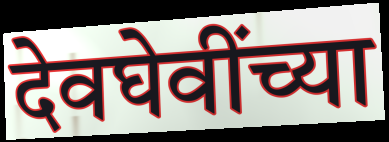
देवघेवींच्या